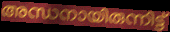
അന്ധനായിരുന്നിട്ട്